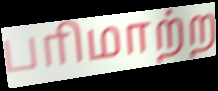
பரிமாற்ற